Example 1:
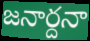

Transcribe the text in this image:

జనార్దనా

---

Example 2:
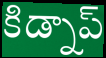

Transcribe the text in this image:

కిడ్నాప్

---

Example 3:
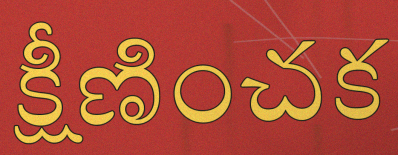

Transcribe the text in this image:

క్షీణించక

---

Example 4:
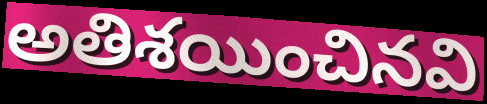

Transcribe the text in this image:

అతిశయించినవి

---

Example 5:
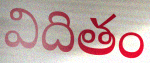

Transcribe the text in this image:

విదితం